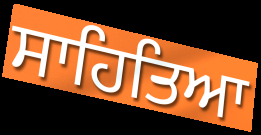
ਸਾਹਿਤਿਆ